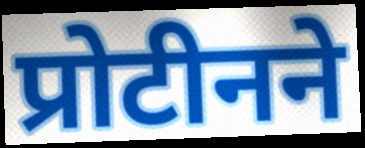
प्रोटीनने